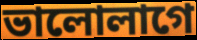
ভালোলাগে